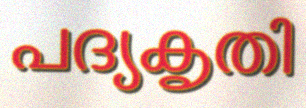
പദ്യകൃതി